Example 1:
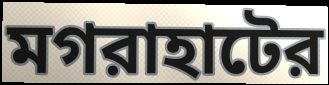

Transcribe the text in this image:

মগরাহাটের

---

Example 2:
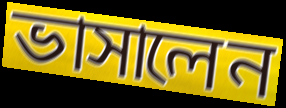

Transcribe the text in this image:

ভাসালেন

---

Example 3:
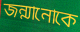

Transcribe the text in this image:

জন্মানোকে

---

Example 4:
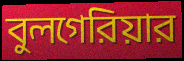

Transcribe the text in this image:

বুলগেরিয়ার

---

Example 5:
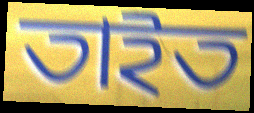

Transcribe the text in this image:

তাইত